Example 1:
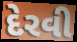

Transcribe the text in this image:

દેરવી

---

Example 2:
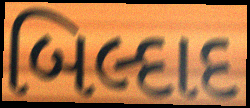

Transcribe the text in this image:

બિલ્દાદ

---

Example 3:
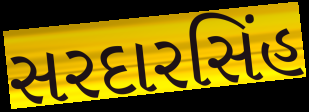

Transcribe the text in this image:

સરદારસિંહ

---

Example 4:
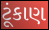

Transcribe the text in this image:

ટૂંકાણ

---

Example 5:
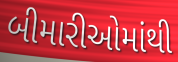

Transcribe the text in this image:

બીમારીઓમાંથી